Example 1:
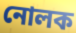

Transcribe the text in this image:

নোলক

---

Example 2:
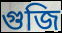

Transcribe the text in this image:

গুজি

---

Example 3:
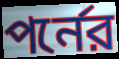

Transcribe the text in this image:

পর্নের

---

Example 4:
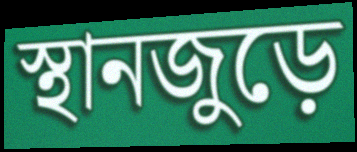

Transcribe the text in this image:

স্থানজুড়ে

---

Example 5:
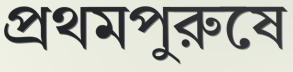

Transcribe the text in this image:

প্রথমপুরুষে